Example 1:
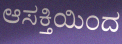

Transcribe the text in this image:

ಆಸಕ್ತಿಯಿಂದ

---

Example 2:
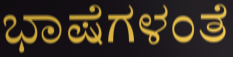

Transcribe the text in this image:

ಭಾಷೆಗಳಂತೆ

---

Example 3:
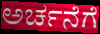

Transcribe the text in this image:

ಅರ್ಚನೆಗೆ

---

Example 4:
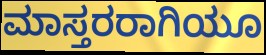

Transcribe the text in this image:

ಮಾಸ್ತರರಾಗಿಯೂ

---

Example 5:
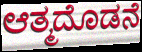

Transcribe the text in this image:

ಆತ್ಮದೊಡನೆ